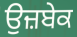
ਉਜ਼ਬੇਕ